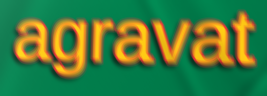
agravat